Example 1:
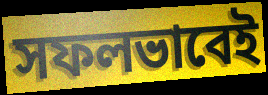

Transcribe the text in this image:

সফলভাবেই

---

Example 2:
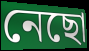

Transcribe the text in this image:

নেছো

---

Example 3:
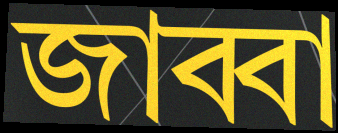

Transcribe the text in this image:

জাব্বা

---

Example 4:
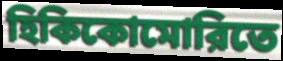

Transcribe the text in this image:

হিকিকোমোরিতে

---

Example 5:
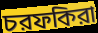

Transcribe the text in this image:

চরফকিরা